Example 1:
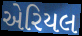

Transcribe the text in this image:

એરિયલ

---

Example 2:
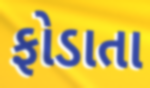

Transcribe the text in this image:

ફોડાતા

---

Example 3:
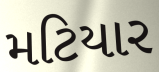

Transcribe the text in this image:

મટિયાર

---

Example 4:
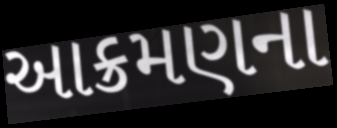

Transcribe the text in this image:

આક્રમણના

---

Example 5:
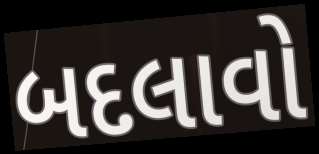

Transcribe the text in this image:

બદલાવો